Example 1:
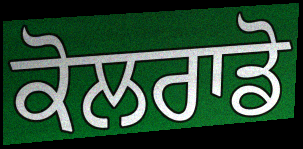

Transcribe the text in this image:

ਕੋਲਰਾਡੋ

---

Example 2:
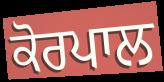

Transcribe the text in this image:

ਕੋਰਪਾਲ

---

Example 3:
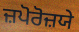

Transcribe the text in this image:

ਜ਼ਪੋਰੋਜ਼ਯੇ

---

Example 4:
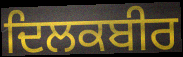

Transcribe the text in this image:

ਦਿਲਕਬੀਰ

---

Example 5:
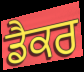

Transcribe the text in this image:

ਡੈਕਰ